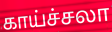
காய்ச்சலா